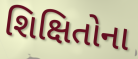
શિક્ષિતોના